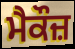
ਮੈਕੌਜ਼